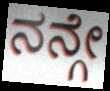
ನನ್ಗೇ